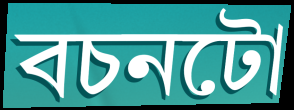
বচনটো